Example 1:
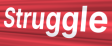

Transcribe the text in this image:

Struggle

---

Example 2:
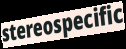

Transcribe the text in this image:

stereospecific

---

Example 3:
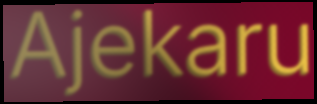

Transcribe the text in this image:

Ajekaru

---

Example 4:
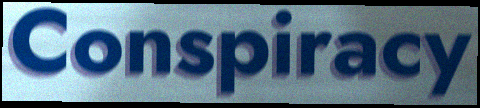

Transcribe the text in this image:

Conspiracy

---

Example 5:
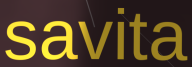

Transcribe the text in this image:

savita